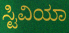
ಸ್ಟಿವಿಯಾ